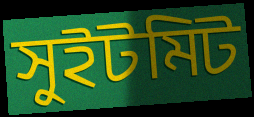
সুইটমিট